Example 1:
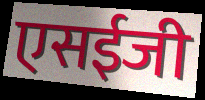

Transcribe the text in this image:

एसईजी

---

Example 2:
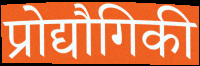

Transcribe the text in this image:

प्रोद्यौगिकी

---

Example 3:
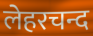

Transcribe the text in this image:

लेहरचन्द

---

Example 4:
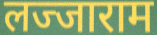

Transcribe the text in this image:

लज्जाराम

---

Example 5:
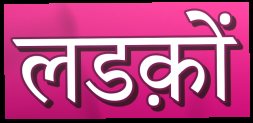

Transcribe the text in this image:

लडक़ों